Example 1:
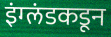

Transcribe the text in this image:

इंग्लंडकडून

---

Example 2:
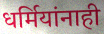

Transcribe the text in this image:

धर्मियांनाही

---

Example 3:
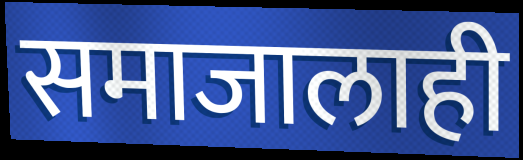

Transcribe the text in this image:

समाजालाही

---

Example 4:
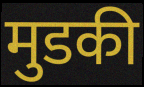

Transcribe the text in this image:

मुडकी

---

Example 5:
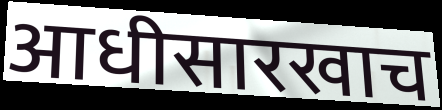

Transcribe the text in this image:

आधीसारखाच